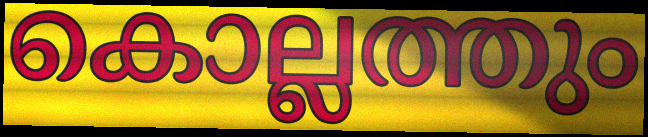
കൊല്ലത്തും